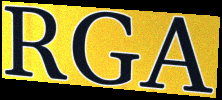
RGA